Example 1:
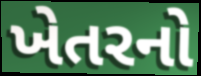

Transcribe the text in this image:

ખેતરનો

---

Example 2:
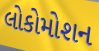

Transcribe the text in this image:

લોકોમોશન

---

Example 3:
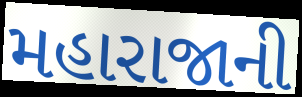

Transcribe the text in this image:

મહારાજાની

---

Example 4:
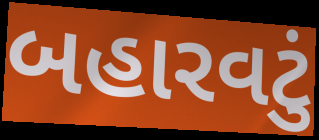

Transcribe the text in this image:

બહારવટું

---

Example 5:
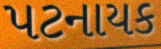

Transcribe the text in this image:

પટનાયક